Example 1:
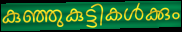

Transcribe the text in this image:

കുഞ്ഞുകുട്ടികൾക്കും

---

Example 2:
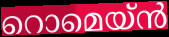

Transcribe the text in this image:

റൊമെയ്ൻ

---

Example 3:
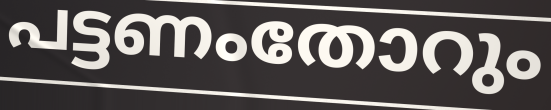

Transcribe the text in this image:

പട്ടണംതോറും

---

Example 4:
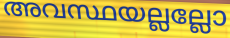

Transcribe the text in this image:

അവസ്ഥയല്ലല്ലോ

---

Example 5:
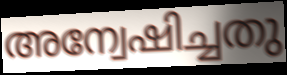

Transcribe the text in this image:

അന്വേഷിച്ചതു